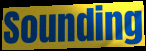
Sounding